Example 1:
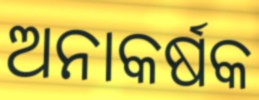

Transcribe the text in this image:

ଅନାକର୍ଷକ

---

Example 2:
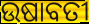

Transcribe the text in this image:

ଉଷାବତୀ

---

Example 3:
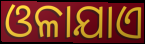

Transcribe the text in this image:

ଓଳାଯାଏ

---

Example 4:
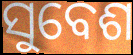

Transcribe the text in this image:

ସୁବେଶ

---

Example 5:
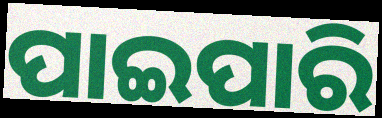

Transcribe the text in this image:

ପାଇପାରି